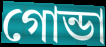
গোন্ডা